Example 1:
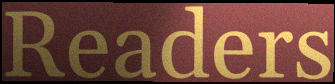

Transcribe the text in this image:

Readers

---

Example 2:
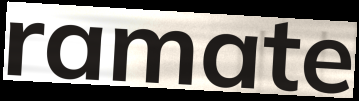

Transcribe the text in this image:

ramate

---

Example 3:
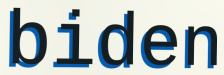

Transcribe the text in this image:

biden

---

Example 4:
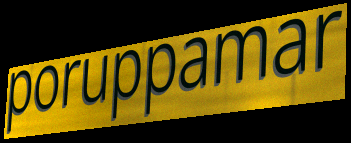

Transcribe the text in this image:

poruppamar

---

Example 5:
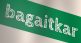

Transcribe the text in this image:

bagaitkar